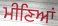
ਮੀਣਿਆਂ